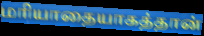
மரியாதையாகத்தான்